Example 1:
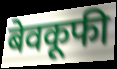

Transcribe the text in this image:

बेवकूफी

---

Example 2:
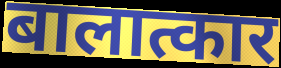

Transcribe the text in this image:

बालात्कार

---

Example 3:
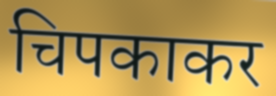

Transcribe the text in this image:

चिपकाकर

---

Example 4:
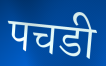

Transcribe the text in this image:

पचडी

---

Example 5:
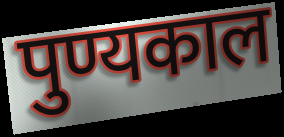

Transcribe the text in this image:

पुण्यकाल